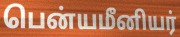
பென்யமீனியர்